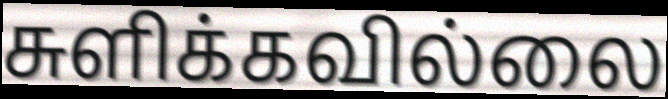
சுளிக்கவில்லை